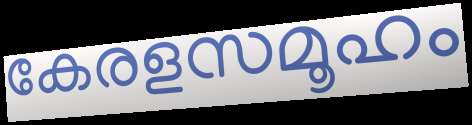
കേരളസമൂഹം